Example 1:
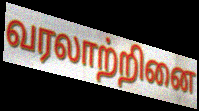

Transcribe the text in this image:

வரலாற்றினை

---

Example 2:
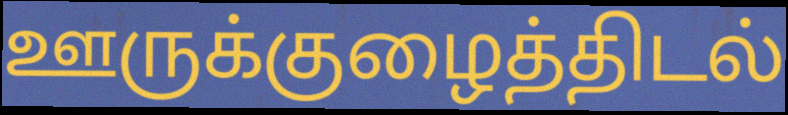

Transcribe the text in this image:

ஊருக்குழைத்திடல்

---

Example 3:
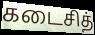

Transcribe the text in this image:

கடைசித்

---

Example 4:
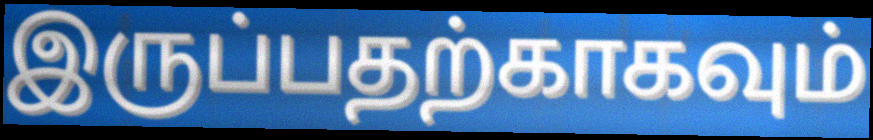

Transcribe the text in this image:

இருப்பதற்காகவும்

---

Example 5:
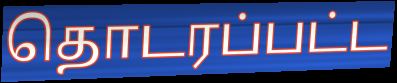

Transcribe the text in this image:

தொடரப்பட்ட